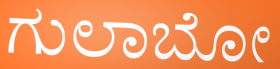
ಗುಲಾಬೋ